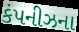
કંપનીઝના